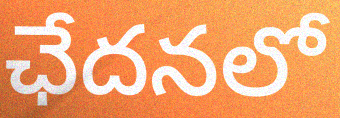
ఛేదనలో